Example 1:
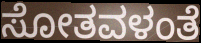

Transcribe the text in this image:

ಸೋತವಳಂತೆ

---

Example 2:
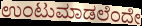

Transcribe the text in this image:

ಉಂಟುಮಾಡಲೆಂದೇ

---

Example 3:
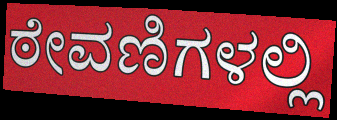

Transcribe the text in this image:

ಠೇವಣಿಗಳಲ್ಲಿ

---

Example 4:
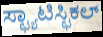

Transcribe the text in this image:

ಸ್ಟ್ಯಾಟಿಸ್ಟಿಕಲ್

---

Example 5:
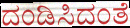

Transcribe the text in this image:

ದಂಡಿಸಿದಂತೆ